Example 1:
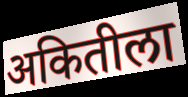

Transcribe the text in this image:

अकितीला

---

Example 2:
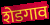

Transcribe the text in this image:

शेडगाव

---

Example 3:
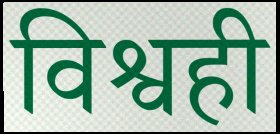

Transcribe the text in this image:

विश्वही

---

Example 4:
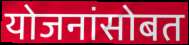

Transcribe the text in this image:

योजनांसोबत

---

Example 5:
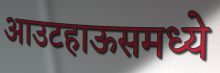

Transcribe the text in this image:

आउटहाऊसमध्ये